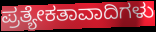
ಪ್ರತ್ಯೇಕತಾವಾದಿಗಳು